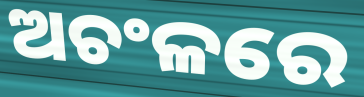
ଅଚଂଳରେ